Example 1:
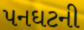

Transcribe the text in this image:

પનઘટની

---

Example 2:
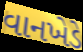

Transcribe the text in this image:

વાનખેડે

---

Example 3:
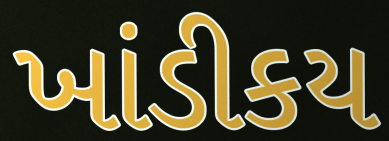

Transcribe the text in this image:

ખાંડીકય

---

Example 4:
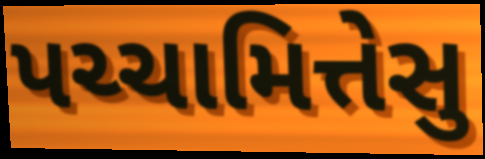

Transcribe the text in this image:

પચ્ચામિત્તેસુ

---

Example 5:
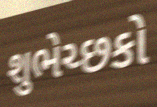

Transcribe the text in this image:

શુભેચ્છકો